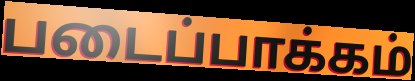
படைப்பாக்கம்